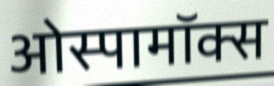
ओस्पामॉक्स